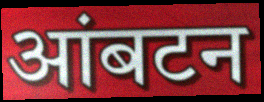
आंबटन